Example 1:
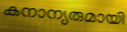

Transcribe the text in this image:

കനാന്യരുമായി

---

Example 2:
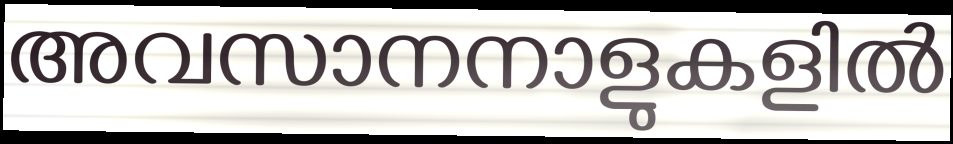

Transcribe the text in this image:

അവസാനനാളുകളിൽ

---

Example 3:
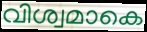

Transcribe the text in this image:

വിശ്വമാകെ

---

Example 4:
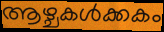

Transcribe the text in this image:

ആഴ്ചകൾക്കകം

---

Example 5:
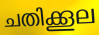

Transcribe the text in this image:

ചതിക്കൂല